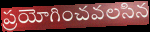
ప్రయోగించవలసిన